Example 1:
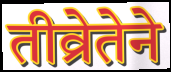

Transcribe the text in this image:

तीव्रेतेने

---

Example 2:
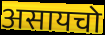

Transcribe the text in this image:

असायचो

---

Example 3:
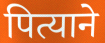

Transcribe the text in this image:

पित्याने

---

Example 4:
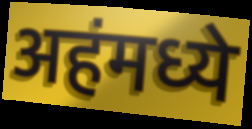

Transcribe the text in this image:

अहंमध्ये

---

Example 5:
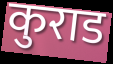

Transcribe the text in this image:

कुराड